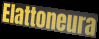
Elattoneura